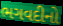
ભગવદીનો